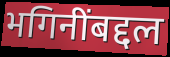
भगिनींबद्दल